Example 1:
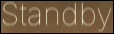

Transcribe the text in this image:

Standby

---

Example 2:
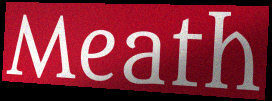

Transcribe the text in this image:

Meath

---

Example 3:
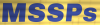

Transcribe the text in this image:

MSSPs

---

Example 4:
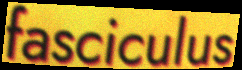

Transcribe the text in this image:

fasciculus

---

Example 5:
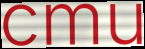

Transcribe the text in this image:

cmu